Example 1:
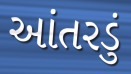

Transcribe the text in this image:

આંતરડું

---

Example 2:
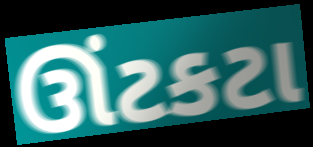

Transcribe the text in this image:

ઊંટકટા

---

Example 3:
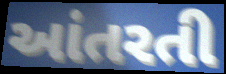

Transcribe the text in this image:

આંતરતી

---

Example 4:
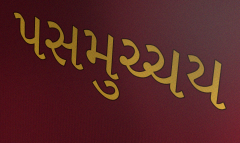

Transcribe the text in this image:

પસમુચ્ચય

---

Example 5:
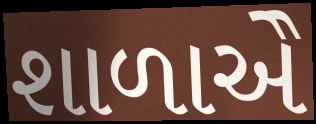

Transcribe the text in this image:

શાળાએે